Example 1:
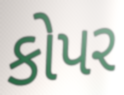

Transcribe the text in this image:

કોપર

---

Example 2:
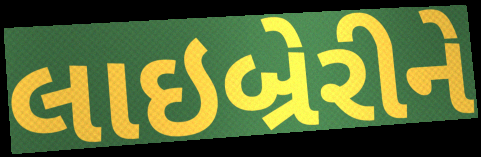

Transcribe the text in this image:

લાઇબ્રેરીને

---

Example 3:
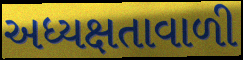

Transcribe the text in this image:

અધ્યક્ષતાવાળી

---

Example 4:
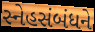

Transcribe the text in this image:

સ્નેહસંબંધને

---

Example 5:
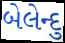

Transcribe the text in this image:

બેલેન્દુ